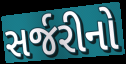
સર્જરીનો